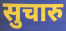
सुचारु